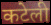
कटेली